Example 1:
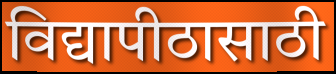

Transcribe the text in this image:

विद्यापीठासाठी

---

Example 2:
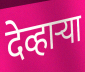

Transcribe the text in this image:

देव्हाऱ्या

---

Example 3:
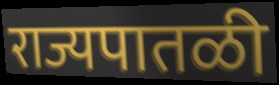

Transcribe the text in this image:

राज्यपातळी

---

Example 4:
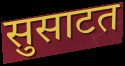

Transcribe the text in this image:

सुसाटत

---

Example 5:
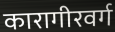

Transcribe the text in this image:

कारागीरवर्ग